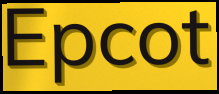
Epcot